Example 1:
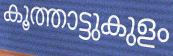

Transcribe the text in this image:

കൂത്താട്ടുകുളം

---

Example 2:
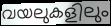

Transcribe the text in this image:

വയലുകളിലും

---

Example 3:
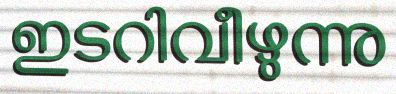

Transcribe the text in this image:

ഇടറിവീഴുന്നു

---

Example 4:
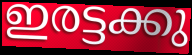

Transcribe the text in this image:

ഇരട്ടക്കു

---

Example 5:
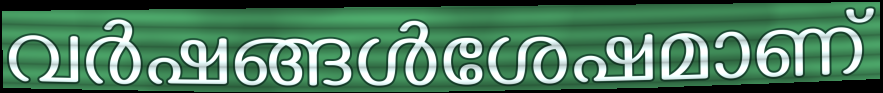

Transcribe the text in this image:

വർഷങ്ങൾശേഷമാണ്